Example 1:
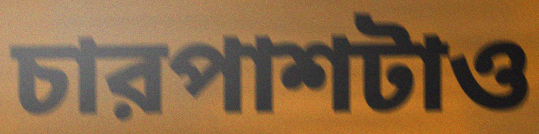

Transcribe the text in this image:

চারপাশটাও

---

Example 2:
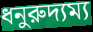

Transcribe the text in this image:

ধনুরুদ্যম্য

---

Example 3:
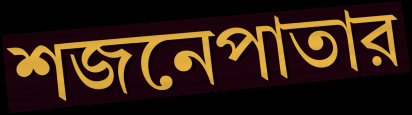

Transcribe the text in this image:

শজনেপাতার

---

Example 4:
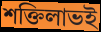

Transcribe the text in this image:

শক্তিলাভই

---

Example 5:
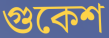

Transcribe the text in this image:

গুকেশ